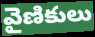
వైణికులు